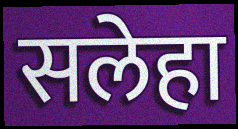
सलेहा